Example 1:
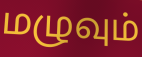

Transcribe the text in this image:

மழுவும்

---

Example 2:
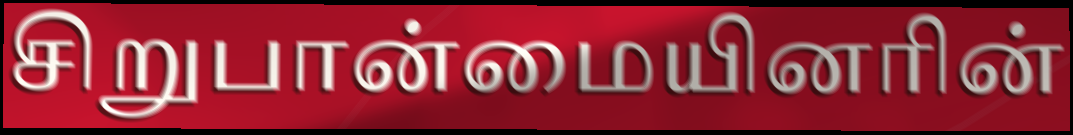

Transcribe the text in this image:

சிறுபான்மையினரின்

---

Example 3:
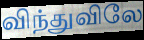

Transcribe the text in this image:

விந்துவிலே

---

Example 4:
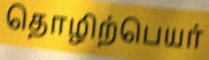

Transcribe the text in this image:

தொழிற்பெயர்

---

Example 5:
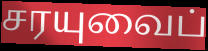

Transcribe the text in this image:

சரயுவைப்